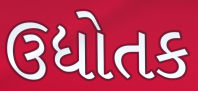
ઉદ્યોતક